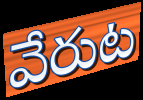
వేరుట